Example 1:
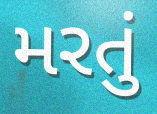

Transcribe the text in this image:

મરતું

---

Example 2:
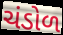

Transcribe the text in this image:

ચંડોળ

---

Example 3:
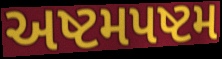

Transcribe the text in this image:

અષ્ટમપષ્ટમ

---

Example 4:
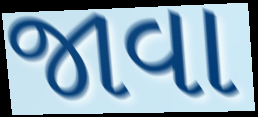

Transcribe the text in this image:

જાવા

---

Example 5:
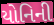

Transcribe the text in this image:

યોનિની